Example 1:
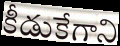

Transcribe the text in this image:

కీడుకేగాని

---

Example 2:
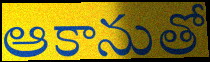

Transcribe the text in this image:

ఆకానుతో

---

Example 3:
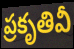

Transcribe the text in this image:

ప్రకృతివీ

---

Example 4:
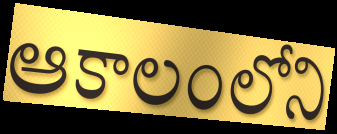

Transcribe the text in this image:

ఆకాలంలోని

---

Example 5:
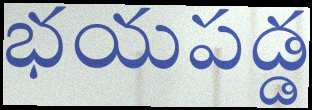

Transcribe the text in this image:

భయపడ్డ